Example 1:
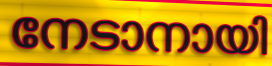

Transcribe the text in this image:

നേടാനായി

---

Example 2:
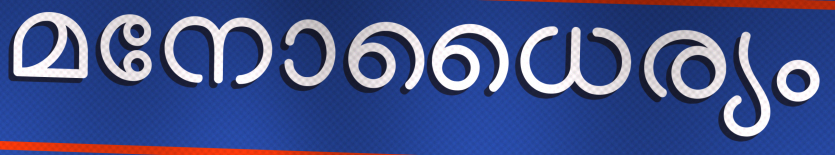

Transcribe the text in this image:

മനോധൈര്യം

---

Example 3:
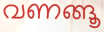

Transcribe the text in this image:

വണങ്ങൂ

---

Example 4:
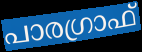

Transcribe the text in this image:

പാരഗ്രാഫ്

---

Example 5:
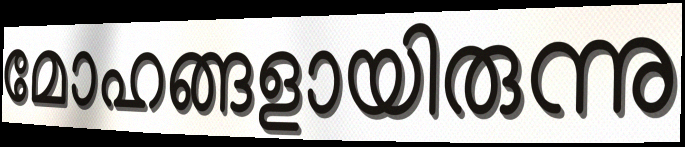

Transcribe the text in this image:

മോഹങ്ങളായിരുന്നു